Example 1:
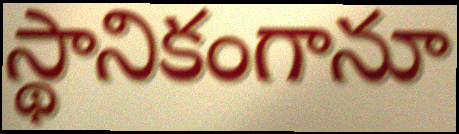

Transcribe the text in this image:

స్థానికంగానూ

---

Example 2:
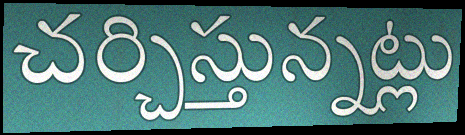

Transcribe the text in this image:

చర్చిస్తున్నట్లు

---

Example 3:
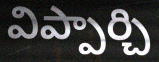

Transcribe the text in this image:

విప్పార్చి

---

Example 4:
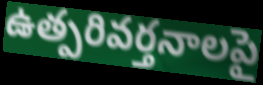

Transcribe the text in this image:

ఉత్పరివర్తనాలపై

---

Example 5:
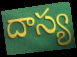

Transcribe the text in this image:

దాస్య